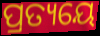
ପ୍ରତ୍ୟୟେ